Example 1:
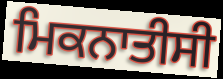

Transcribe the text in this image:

ਮਿਕਨਾਤੀਸੀ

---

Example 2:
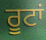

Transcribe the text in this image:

ਰੂਟਾਂ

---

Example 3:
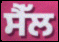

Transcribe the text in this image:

ਸੈੱਲ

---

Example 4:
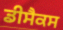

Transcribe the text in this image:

ਡੀਸੈਕਸ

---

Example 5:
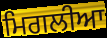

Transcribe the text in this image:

ਮਿਗਲੀਆ